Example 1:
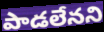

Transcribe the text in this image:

పాడలేనని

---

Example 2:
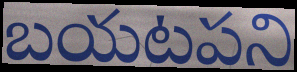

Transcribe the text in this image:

బయటపని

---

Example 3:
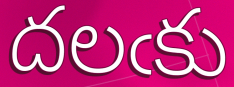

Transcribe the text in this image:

దలఁకు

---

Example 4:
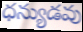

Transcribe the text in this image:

ధన్యుడవు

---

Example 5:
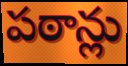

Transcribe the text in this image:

పఠాన్లు